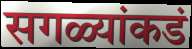
सगळ्यांकडं